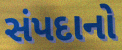
સંપદાનો